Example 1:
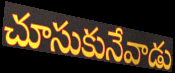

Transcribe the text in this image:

చూసుకునేవాడు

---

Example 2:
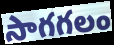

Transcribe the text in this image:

సాగగలం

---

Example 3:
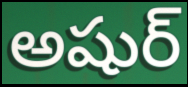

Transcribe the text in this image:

అషుర్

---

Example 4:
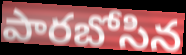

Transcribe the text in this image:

పారబోసిన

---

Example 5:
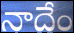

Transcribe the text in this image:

నాదేం